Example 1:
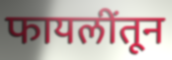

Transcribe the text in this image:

फायलींतून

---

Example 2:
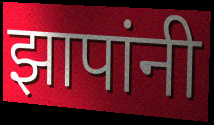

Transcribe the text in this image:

झापांनी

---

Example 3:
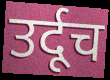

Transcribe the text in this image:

उर्दूच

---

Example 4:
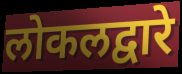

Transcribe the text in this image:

लोकलद्वारे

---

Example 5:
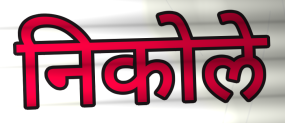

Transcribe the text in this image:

निकोले